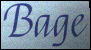
Bage